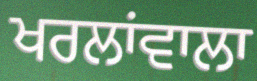
ਖਰਲਾਂਵਾਲਾ